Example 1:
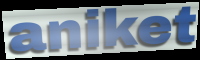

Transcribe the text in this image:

aniket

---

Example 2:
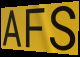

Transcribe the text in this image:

AFS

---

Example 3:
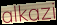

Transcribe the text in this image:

alkazi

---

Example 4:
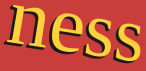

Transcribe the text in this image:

ness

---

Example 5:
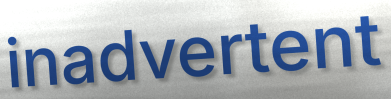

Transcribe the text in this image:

inadvertent